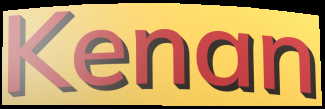
Kenan